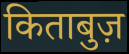
किताबुज़